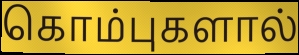
கொம்புகளால்